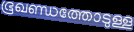
ഭൂഖണ്ഡത്തോടുള്ള